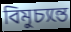
বিমুচ্যন্তে